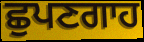
ਛੁਪਣਗਾਹ